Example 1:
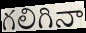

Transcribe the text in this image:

గలిగినా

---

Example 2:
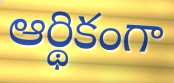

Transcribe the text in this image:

ఆర్థికంగా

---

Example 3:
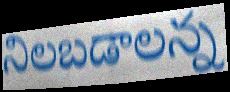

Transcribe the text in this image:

నిలబడాలన్న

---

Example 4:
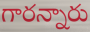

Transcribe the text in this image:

గారన్నారు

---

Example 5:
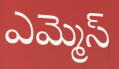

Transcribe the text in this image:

ఎమ్మెస్